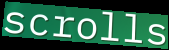
scrolls